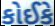
કોઈકે